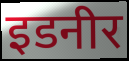
इडनीर